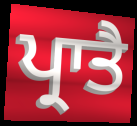
ਪ੍ਰਾਤੈ